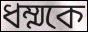
ধম্মকে